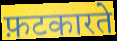
फ़टकारते